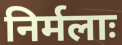
निर्मलाः